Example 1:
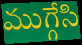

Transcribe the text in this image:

ముగ్గేసి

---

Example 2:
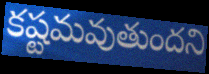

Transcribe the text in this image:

కష్టమవుతుందని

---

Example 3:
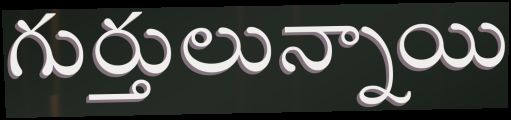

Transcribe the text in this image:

గుర్తులున్నాయి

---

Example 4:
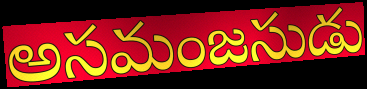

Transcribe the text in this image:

అసమంజసుడు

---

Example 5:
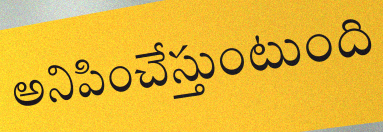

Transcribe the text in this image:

అనిపించేస్తుంటుంది